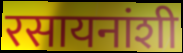
रसायनांशी